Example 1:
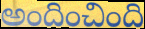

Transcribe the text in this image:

అందించింది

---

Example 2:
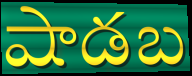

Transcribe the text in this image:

షాడబ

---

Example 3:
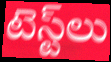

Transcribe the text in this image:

టెస్ట్‌లు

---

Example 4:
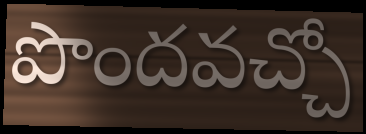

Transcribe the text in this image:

పొందవచ్చో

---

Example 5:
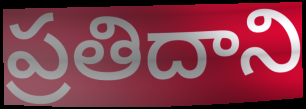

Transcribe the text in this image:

ప్రతిదాని